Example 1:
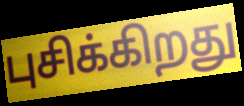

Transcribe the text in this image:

புசிக்கிறது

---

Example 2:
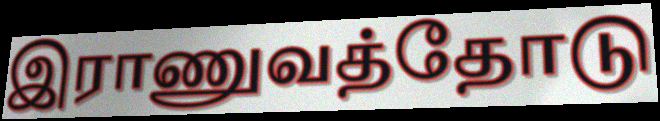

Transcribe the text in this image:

இராணுவத்தோடு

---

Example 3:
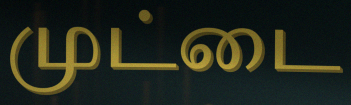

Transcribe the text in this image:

முட்டை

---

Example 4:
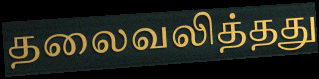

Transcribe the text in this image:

தலைவலித்தது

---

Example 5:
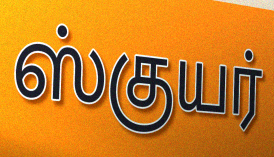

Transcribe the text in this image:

ஸ்குயர்